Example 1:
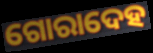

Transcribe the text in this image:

ଗୋରାଦେହ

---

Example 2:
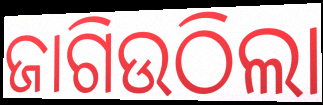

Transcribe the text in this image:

ଜାଗିଉଠିଲା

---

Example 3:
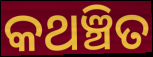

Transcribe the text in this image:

କଥଞ୍ଚିତ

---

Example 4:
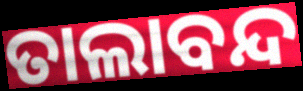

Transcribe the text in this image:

ତାଲାବନ୍ଦ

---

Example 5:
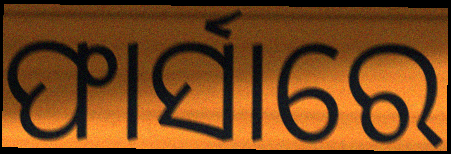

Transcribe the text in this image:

ଫାର୍ସାରେ